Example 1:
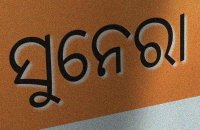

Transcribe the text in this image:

ସୁନେରା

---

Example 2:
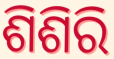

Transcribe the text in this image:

ଶିଶିରି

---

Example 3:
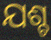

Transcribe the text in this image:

ଯଶ୍ଚ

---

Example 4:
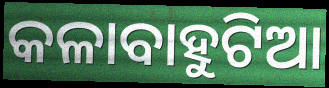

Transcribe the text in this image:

କଳାବାହୁଟିଆ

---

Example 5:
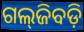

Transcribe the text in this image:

ଗଲ୍‌ଜିବଡ଼ି